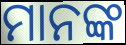
ମାନଙ୍କ